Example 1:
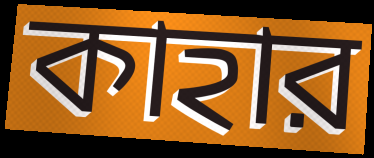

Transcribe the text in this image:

কাহার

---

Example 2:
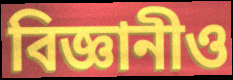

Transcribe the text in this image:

বিজ্ঞানীও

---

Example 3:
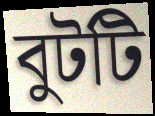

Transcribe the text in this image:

বুটটি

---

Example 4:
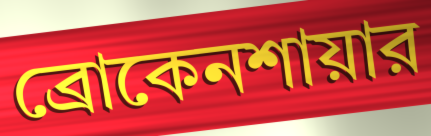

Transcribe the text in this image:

ব্রোকেনশায়ার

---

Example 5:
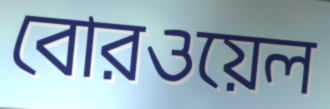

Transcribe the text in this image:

বোরওয়েল